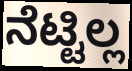
ನೆಟ್ಟಿಲ್ಲ